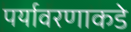
पर्यावरणाकडे